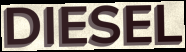
DIESEL